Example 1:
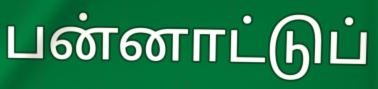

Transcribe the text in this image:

பன்னாட்டுப்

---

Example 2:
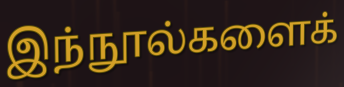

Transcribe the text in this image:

இந்நூல்களைக்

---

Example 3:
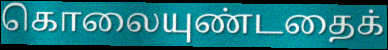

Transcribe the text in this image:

கொலையுண்டதைக்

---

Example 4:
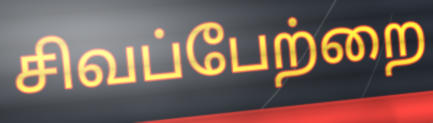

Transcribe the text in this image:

சிவப்பேற்றை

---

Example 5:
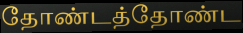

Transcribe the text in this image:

தோண்டத்தோண்ட